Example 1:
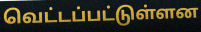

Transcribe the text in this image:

வெட்டப்பட்டுள்ளன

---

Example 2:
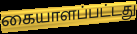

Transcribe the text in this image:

கையாளப்பட்டது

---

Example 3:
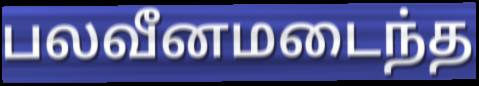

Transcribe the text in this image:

பலவீனமடைந்த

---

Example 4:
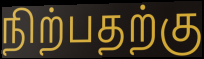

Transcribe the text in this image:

நிற்பதற்கு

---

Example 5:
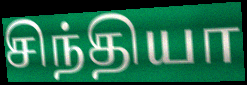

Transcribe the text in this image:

சிந்தியா